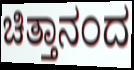
ಚಿತ್ತಾನಂದ